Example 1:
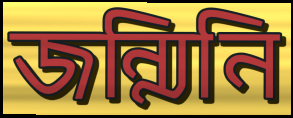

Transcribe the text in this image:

জন্মিনি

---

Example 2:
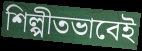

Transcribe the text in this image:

শিল্পীতভাবেই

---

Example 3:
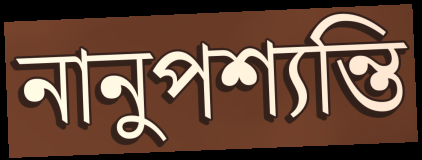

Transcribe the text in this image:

নানুপশ্যন্তি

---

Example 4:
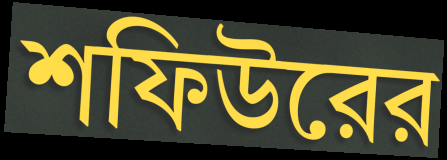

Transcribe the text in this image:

শফিউরের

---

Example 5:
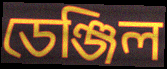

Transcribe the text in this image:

ডেঞ্জিল